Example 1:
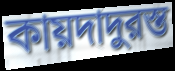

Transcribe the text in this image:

কায়দাদুরস্ত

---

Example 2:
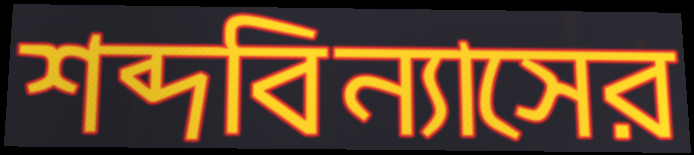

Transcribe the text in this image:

শব্দবিন্যাসের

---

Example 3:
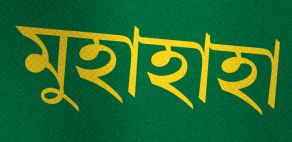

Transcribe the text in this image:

মুহাহাহা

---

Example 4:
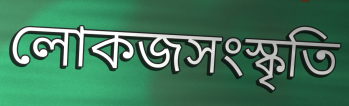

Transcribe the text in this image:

লোকজসংস্কৃতি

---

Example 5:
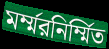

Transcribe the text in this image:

মর্ম্মরনির্ম্মিত